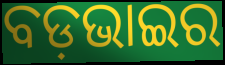
ବଡ଼ଭାଇର